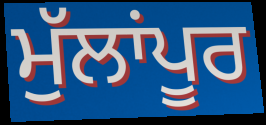
ਮੁੱਲਾਂਪੂਰ